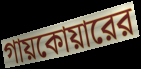
গায়কোয়ারের